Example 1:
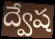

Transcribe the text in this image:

ద్వేష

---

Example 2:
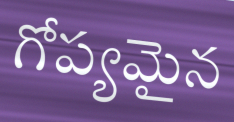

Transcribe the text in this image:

గోప్యమైన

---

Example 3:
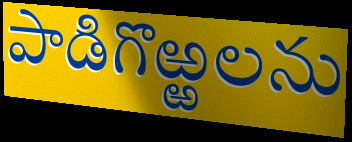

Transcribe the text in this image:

పాడిగొఱ్ఱలను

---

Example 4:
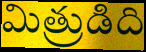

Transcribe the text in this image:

మిత్రుడిది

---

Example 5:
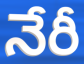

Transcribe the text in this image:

నేరీ